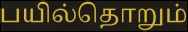
பயில்தொறும்